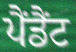
ਪੈਂਡੈਂਟ